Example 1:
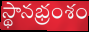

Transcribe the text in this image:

స్థానభ్రంశం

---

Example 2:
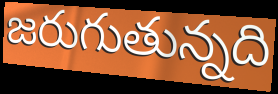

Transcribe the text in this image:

జరుగుతున్నది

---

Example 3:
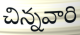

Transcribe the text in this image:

చిన్నవారి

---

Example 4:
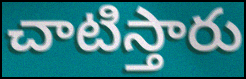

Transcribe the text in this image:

చాటిస్తారు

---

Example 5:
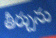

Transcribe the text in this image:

తీర్చును